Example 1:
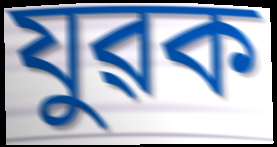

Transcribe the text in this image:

যুৱক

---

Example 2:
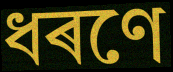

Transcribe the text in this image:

ধৰণে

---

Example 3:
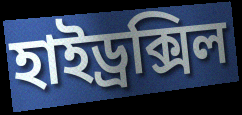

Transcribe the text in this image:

হাইড্ৰক্সিল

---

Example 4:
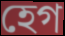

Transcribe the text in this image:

হেগ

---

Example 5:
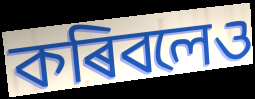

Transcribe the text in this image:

কৰিবলেও